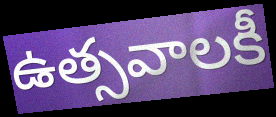
ఉత్సవాలకీ